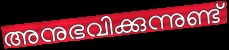
അനുഭവിക്കുന്നുണ്ട്